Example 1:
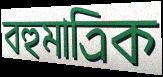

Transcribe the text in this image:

বহুমাত্রিক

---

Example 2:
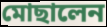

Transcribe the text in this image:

মোছালেন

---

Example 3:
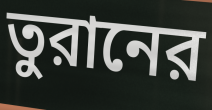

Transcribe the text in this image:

তুরানের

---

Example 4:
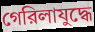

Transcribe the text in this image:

গেরিলাযুদ্ধে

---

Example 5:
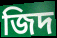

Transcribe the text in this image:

জিদ